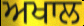
ਅਖਾਲ